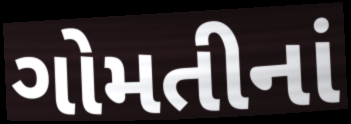
ગોમતીનાં